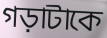
গড়াটাকে